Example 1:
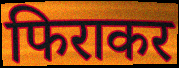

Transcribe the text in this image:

फिराकर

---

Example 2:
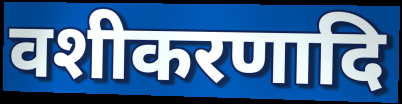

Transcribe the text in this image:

वशीकरणादि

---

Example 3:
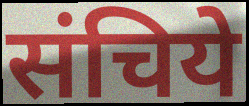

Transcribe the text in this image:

संचिये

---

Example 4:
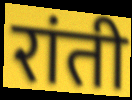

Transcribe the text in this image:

रांती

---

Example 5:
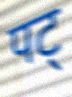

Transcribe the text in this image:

पट्